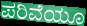
ಪರಿವೆಯೂ